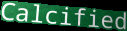
Calcified